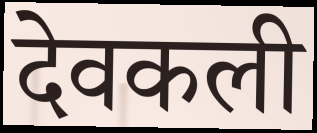
देवकली